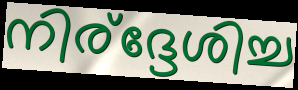
നിര്ദ്ദേശിച്ച